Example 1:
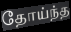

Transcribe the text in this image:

தோய்ந்த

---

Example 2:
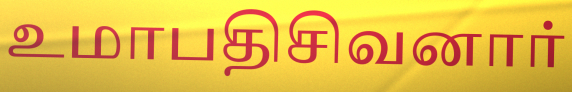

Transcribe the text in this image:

உமாபதிசிவனார்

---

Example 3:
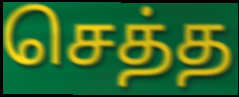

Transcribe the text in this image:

செத்த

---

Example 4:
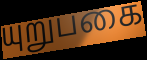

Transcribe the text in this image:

யுறுபகை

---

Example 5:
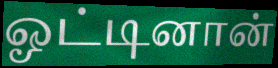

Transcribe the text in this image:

ஓட்டினான்